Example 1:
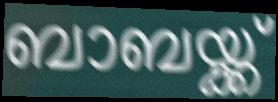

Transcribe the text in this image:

ബാബയ്ക്ക്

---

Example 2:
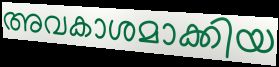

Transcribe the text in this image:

അവകാശമാക്കിയ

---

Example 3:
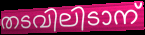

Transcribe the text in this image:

തടവിലിടാന്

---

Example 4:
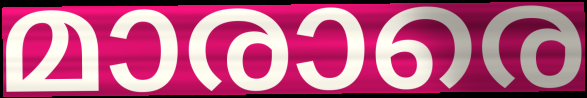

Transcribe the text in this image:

മാരാരെ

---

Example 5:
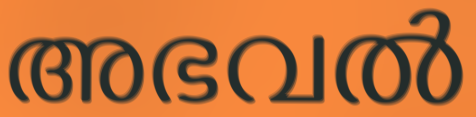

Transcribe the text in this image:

അഭവൽ